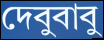
দেবুবাবু